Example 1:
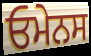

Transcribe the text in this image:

ਓਮੇਨਸ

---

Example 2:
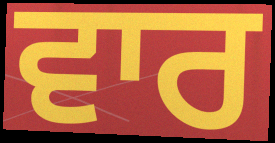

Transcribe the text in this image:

ਵਾਰ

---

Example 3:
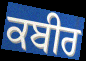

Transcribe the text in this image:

ਕਬੀਰ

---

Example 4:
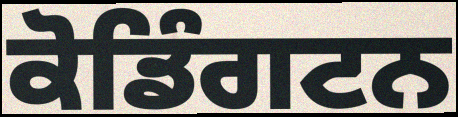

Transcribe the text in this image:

ਕੋਡਿੰਗਟਨ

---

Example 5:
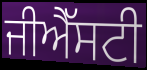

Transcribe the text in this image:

ਜੀਐੱਸਟੀ